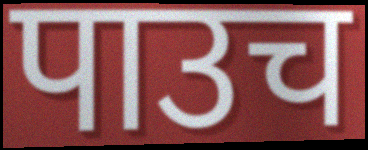
पाउच